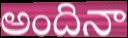
అందినా